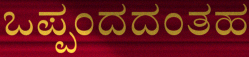
ಒಪ್ಪಂದದಂತಹ